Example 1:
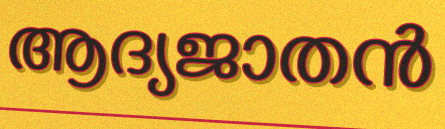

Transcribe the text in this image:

ആദ്യജാതൻ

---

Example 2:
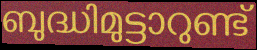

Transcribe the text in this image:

ബുദ്ധിമുട്ടാറുണ്ട്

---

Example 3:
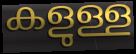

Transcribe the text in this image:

കളുള്ള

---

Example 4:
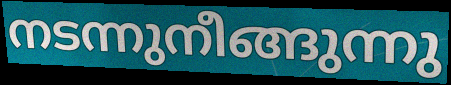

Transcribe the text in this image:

നടന്നുനീങ്ങുന്നു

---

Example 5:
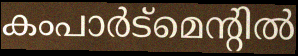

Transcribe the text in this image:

കംപാർട്മെന്റിൽ